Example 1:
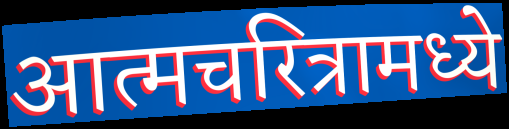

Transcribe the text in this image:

आत्मचरित्रामध्ये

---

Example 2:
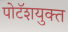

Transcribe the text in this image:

पोटॅशयुक्त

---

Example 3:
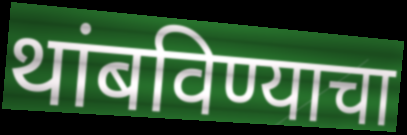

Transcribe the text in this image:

थांबविण्याचा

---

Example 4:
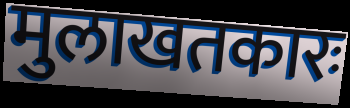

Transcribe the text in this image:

मुलाखतकारः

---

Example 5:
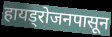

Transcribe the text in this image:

हायड्रोजनपासून